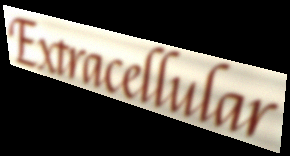
Extracellular